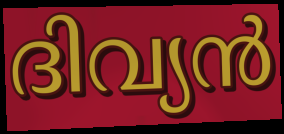
ദിവ്യൻ